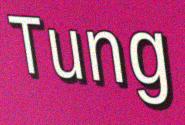
Tung